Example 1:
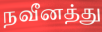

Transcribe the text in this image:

நவீனத்து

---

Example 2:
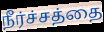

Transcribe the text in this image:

நீர்ச்சத்தை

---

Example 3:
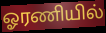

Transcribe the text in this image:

ஓரணியில்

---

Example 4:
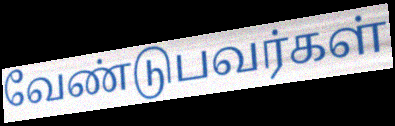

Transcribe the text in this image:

வேண்டுபவர்கள்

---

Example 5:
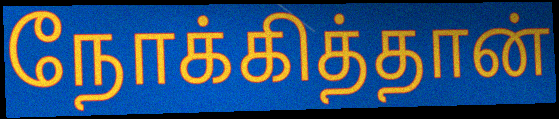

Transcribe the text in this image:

நோக்கித்தான்